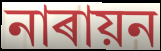
নাৰায়ন